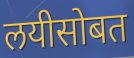
लयीसोबत